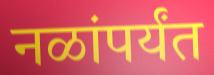
नळांपर्यंत